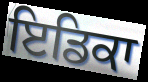
ਇਡਿਕਾ